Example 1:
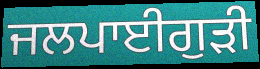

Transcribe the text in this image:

ਜਲਪਾਈਗੁਡ਼ੀ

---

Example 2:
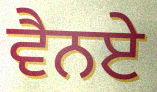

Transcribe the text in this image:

ਵੈਨਏ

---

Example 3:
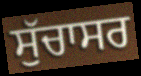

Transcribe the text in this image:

ਸੁੱਚਾਸਰ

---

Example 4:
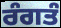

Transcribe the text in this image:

ਰੰਗਤੰ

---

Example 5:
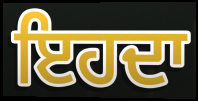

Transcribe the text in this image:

ਇਹਦਾ